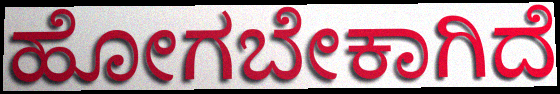
ಹೋಗಬೇಕಾಗಿದೆ